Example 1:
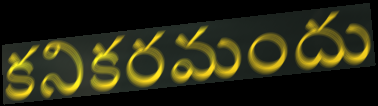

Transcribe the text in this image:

కనికరమందు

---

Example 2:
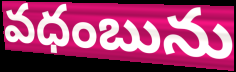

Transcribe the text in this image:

వధంబును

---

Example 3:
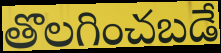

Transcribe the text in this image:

తొలగించబడే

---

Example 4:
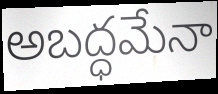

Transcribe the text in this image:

అబద్ధమేనా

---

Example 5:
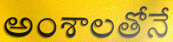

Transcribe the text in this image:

అంశాలతోనే